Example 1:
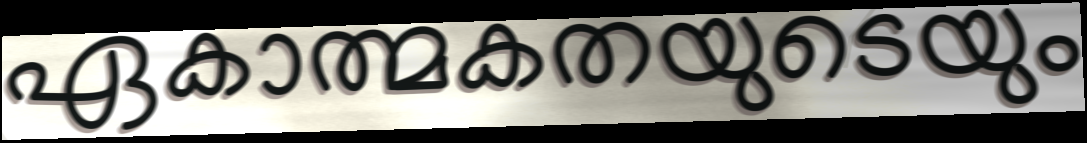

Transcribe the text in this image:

ഏകാത്മകതയുടെയും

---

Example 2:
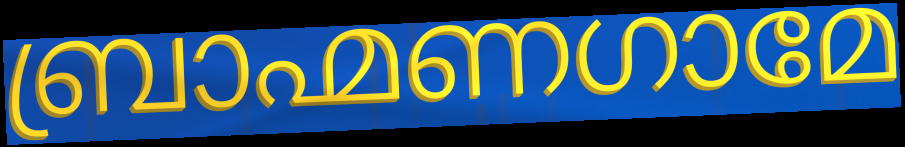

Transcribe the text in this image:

ബ്രാഹ്മണഗാമേ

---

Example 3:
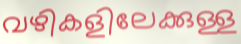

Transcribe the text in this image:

വഴികളിലേക്കുള്ള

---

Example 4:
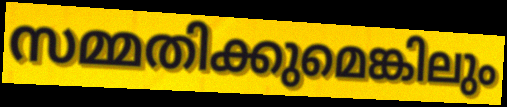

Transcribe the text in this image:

സമ്മതിക്കുമെങ്കിലും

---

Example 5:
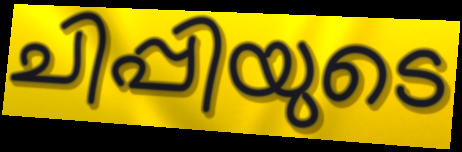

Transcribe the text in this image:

ചിപ്പിയുടെ